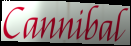
Cannibal